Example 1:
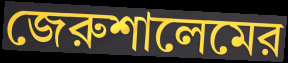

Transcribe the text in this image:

জেরুশালেমের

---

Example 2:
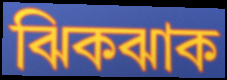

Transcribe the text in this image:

ঝিকঝাক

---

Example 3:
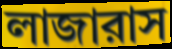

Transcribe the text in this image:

লাজারাস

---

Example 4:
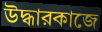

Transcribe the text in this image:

উদ্ধারকাজে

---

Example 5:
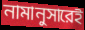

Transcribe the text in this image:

নামানুসারেই